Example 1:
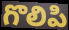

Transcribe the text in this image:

గొలిపి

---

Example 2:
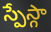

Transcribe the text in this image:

స్పేస్గా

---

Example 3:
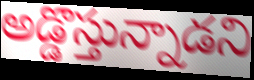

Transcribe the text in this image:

అడ్డొస్తున్నాడని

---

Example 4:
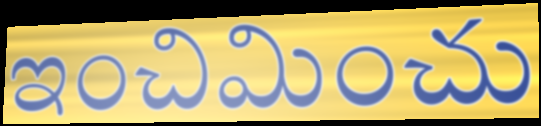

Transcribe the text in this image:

ఇంచిమించు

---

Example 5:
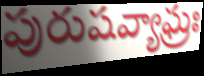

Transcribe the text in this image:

పురుషవ్యాఘ్రః